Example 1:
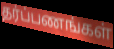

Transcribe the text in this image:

தர்ப்பணங்கள்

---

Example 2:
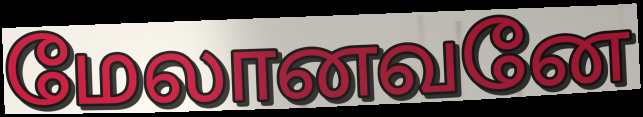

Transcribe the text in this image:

மேலானவனே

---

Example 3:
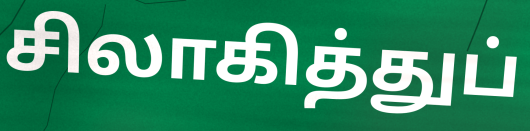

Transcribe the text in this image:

சிலாகித்துப்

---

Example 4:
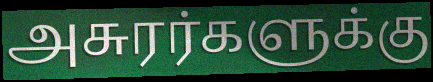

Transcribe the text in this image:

அசுரர்களுக்கு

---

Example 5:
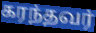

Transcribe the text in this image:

கரந்தவர்